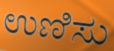
ಉಣಿಸು